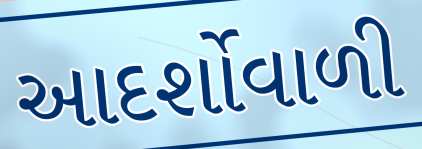
આદર્શોવાળી